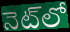
నెట్‌లో